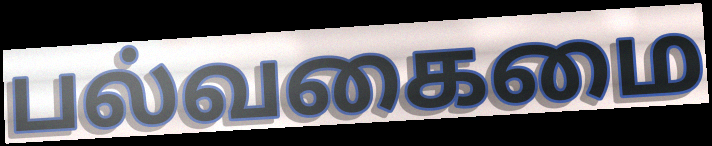
பல்வகைமை